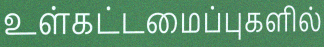
உள்கட்டமைப்புகளில்